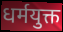
धर्मयुक्त